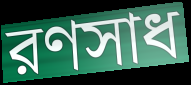
রণসাধ